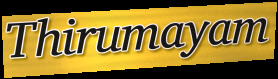
Thirumayam